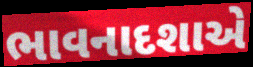
ભાવનાદશાએ